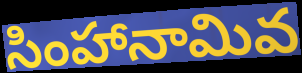
సింహానామివ